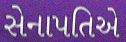
સેનાપતિએ